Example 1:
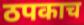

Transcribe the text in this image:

ठपकाच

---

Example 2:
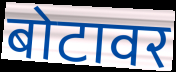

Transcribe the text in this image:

बोटावर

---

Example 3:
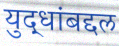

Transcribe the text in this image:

युद्धांबद्दल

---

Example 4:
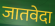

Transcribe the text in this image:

जातवेदा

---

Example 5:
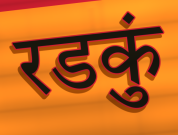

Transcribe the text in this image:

रडकुं